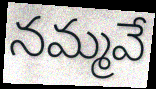
నమ్మవే